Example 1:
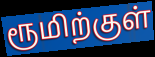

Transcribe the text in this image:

ரூமிற்குள்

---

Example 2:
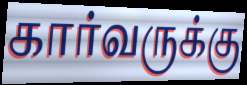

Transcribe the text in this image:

கார்வருக்கு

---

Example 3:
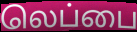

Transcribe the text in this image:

லெப்பை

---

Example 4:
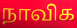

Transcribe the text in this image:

நாவிக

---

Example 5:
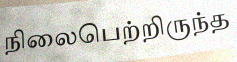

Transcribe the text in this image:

நிலைபெற்றிருந்த